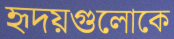
হৃদয়গুলোকে